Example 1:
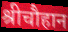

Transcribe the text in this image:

श्रीचौहान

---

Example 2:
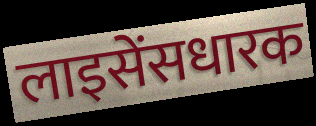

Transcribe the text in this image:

लाइसेंसधारक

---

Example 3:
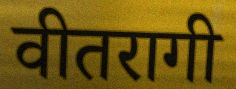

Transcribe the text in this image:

वीतरागी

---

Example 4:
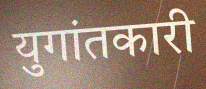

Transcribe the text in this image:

युगांतकारी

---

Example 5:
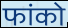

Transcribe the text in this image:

फांको